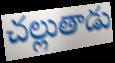
చల్లుతాడు